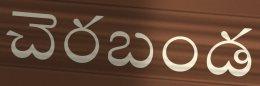
చెరబండ